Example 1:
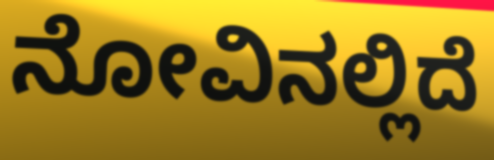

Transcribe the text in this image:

ನೋವಿನಲ್ಲಿದೆ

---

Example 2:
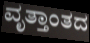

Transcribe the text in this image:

ವೃತ್ತಾಂತದ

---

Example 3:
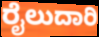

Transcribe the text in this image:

ರೈಲುದಾರಿ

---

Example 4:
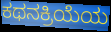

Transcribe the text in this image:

ಕಥನಕ್ರಿಯೆಯ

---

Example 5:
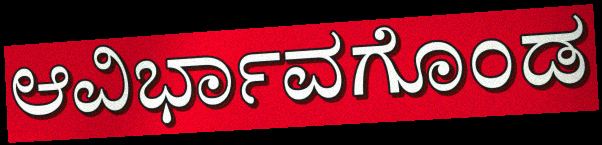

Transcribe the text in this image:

ಆವಿರ್ಭಾವಗೊಂಡ